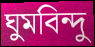
ঘুমবিন্দু